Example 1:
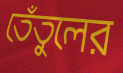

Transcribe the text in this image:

তেঁতুলের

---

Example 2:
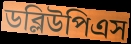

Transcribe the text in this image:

ডব্লিউপিএস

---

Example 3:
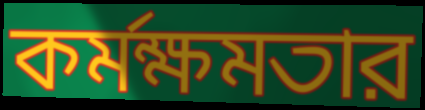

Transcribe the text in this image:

কর্মক্ষমতার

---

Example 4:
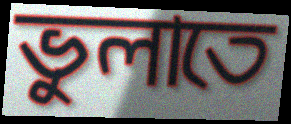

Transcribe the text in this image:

ভুলাতে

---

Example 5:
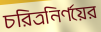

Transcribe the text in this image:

চরিত্রনির্ণয়ের